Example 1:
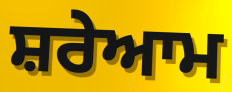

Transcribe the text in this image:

ਸ਼ਰੇਆਮ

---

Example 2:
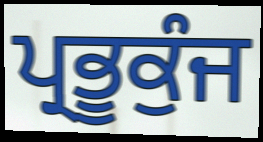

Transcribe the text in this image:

ਪ੍ਰਭੂਕੁੰਜ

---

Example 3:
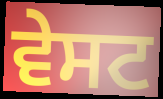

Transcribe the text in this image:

ਵੇਸਟ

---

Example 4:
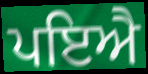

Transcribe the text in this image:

ਪਇਐ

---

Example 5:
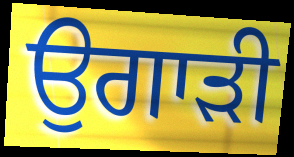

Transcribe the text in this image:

ਉਗਾੜੀ